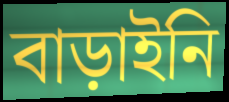
বাড়াইনি